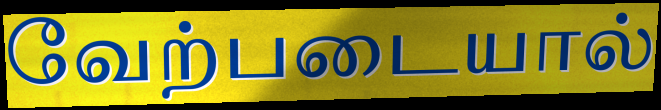
வேற்படையால்